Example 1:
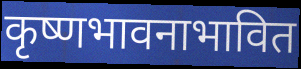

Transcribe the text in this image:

कृष्णभावनाभावित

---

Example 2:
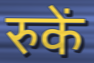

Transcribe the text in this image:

रुकें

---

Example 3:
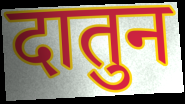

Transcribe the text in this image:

दातुन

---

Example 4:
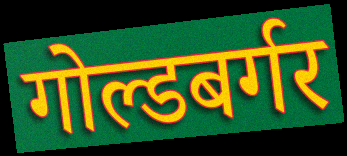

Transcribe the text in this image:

गोल्डबर्गर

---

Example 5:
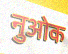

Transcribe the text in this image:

नुओक